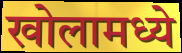
खोलामध्ये